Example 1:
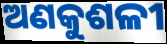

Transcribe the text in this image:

ଅଣକୁଶଳୀ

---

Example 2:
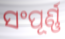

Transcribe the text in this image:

ସଂପୂର୍ଣ୍ଣ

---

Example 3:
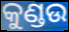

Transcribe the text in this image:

କୁଣ୍ଡଉ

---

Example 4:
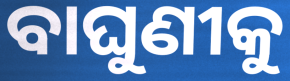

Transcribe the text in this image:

ବାଘୁଣୀକୁ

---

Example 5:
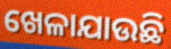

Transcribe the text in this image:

ଖେଳାଯାଉଛି